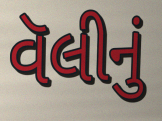
વૅલીનું